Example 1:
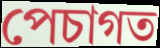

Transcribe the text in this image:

পেচাগত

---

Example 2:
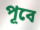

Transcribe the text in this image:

পূবে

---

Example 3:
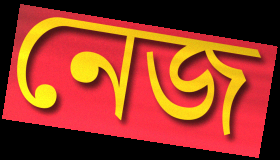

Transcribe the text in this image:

নেজ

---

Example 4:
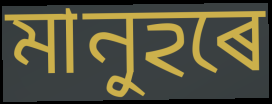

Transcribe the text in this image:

মানুহৰে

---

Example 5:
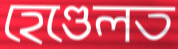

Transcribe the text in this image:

হেণ্ডেলত